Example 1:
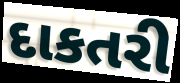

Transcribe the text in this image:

દાકતરી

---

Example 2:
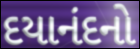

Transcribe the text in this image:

દયાનંદનો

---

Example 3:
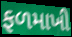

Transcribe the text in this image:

ફળમાખી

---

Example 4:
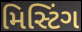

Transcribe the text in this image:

મિસ્ટિંગ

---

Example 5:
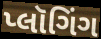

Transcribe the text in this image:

પ્લૉગિંગ